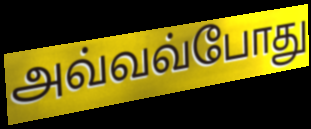
அவ்வவ்போது